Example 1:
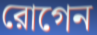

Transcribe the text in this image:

রোগেন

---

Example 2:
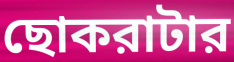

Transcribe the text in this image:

ছোকরাটার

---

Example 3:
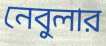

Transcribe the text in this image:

নেবুলার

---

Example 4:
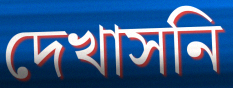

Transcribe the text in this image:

দেখাসনি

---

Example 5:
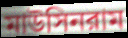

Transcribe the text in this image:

মাউসিনরাম